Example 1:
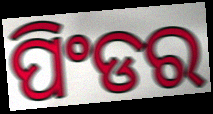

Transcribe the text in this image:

ପିଂଡର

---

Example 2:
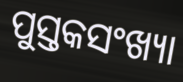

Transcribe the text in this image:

ପୁସ୍ତକସଂଖ୍ୟା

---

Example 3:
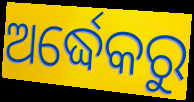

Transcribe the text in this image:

ଅର୍ଦ୍ଧେକରୁ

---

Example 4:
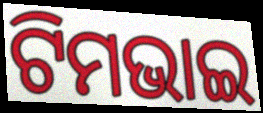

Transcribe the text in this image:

ଟିମଭାଇ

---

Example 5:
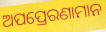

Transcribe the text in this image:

ଅପପ୍ରେରଣାମାନ